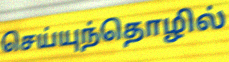
செய்யுந்தொழில்